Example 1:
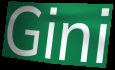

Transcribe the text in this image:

Gini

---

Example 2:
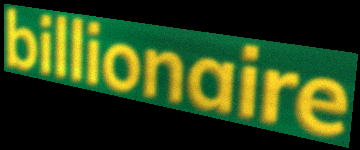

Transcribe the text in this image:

billionaire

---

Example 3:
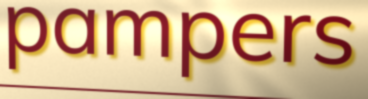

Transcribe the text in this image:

pampers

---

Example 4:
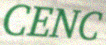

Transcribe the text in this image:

CENC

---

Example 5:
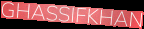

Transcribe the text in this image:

GHASSIFKHAN